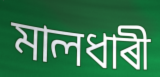
মালধাৰী